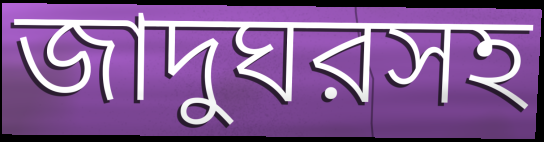
জাদুঘরসহ